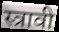
स्त्रावी